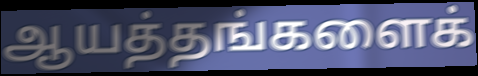
ஆயத்தங்களைக்